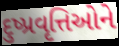
દુષ્પ્રવૃત્તિઓને